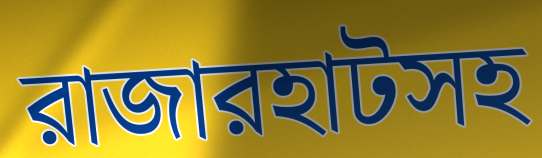
রাজারহাটসহ